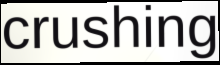
crushing